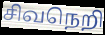
சிவநெறி